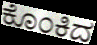
ಕೊಂಕಿದ